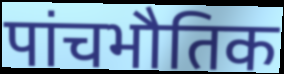
पांचभौतिक